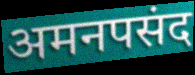
अमनपसंद